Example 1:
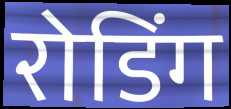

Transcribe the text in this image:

रोडिंग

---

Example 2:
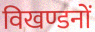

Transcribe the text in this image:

विखण्डनों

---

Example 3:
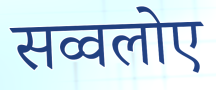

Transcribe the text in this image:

सव्वलोए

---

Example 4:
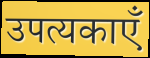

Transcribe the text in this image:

उपत्यकाएँ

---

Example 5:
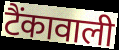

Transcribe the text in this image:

टैंकावाली